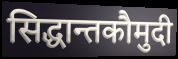
सिद्धान्तकौमुदी